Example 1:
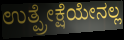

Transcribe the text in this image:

ಉತ್ಪ್ರೇಕ್ಷೆಯೇನಲ್ಲ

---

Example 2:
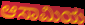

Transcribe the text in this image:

ಆಸಾಮಿಯ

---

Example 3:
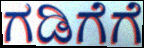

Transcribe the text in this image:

ಗಡಿಗೆಗೆ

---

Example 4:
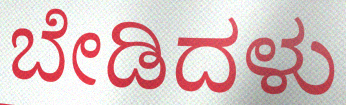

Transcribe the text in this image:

ಬೇಡಿದಳು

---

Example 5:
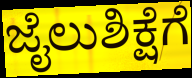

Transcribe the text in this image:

ಜೈಲುಶಿಕ್ಷೆಗೆ